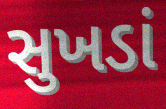
સુખડાં